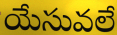
యేసువలే